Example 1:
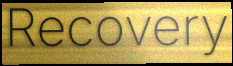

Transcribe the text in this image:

Recovery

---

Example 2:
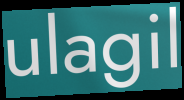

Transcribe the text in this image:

ulagil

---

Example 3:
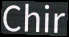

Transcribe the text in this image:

Chir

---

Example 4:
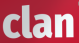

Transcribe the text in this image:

clan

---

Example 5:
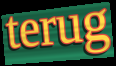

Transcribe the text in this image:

terug